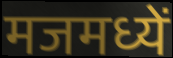
मजमध्यें